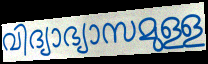
വിദ്യാഭ്യാസമുള്ള